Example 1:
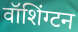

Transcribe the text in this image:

वॉशिंग्टन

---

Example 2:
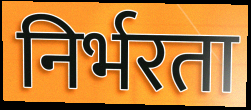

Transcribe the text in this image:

निर्भरता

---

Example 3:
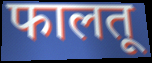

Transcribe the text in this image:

फालतू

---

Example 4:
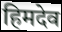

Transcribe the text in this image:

हिमदेव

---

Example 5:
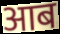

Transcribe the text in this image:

आब